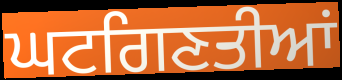
ਘਟਗਿਣਤੀਆਂ